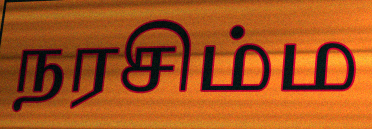
நரசிம்ம